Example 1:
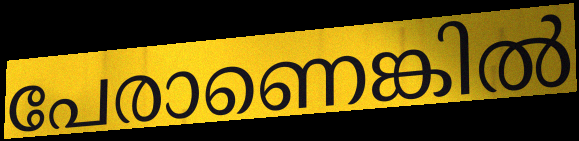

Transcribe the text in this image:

പേരാണെങ്കിൽ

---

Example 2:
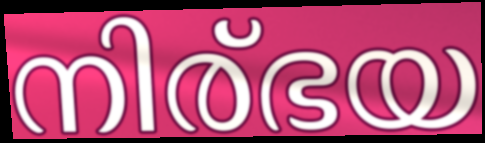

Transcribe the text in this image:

നിര്ഭയ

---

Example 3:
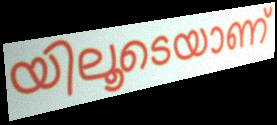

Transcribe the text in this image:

യിലൂടെയാണ്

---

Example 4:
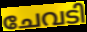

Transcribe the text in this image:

ചേവടി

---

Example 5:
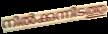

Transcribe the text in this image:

നിൽക്കുന്നിടത്തു